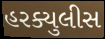
હરક્યુલીસ